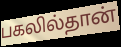
பகலில்தான்